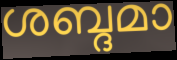
ശബ്ദമാ